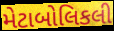
મેટાબોલિકલી